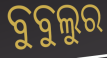
ବୁବୁଲୁର